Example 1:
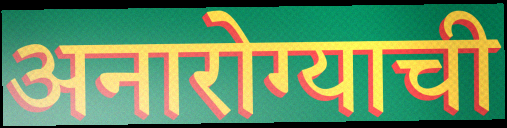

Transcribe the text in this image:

अनारोग्याची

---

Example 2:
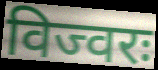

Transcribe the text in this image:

विज्वरः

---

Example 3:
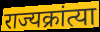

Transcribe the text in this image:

राज्यक्रांत्या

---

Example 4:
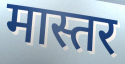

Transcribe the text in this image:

मास्तर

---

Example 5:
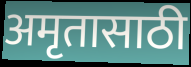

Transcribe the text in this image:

अमृतासाठी